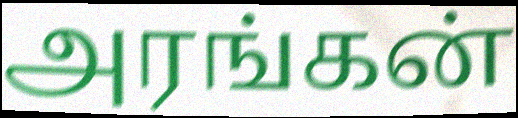
அரங்கன்